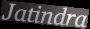
Jatindra